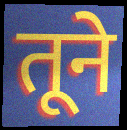
तूने